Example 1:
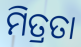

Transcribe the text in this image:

ମିତ୍ରତା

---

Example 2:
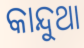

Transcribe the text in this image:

କାନ୍ଦୁଥା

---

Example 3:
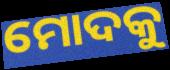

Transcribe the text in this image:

ମୋଦକୁ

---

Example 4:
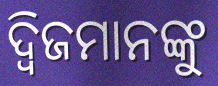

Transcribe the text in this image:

ଦ୍ଵିଜମାନଙ୍କୁ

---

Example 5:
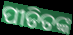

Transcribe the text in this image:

ପୀଡିତଙ୍କ